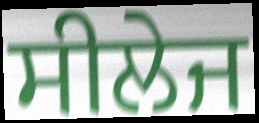
ਸੀਲੇਜ